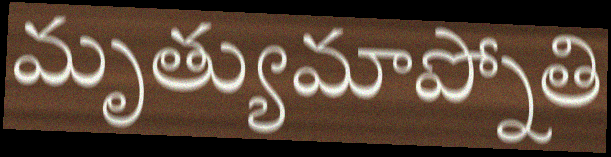
మృత్యుమాప్నోతి